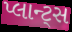
પ્લાન્ટ્સ